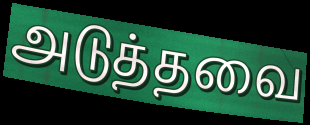
அடுத்தவை